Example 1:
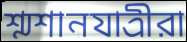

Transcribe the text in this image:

শ্মশানযাত্রীরা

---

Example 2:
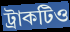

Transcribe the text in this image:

ট্রাকটিও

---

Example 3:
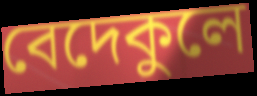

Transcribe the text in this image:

বেদেকুলে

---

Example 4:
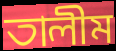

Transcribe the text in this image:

তালীম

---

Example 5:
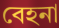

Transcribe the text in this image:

বেহনা